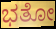
ಭತೋ